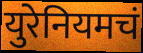
युरेनियमचं